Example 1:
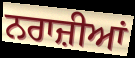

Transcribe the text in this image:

ਨਰਾਜ਼ੀਆਂ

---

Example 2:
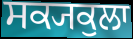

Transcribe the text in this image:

ਸਕ੍ਯਕੁਲਾ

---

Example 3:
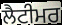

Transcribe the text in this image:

ਲੈਟੀਮਰ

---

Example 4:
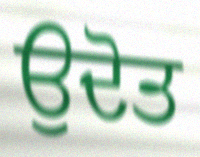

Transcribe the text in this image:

ਉਦੋਤ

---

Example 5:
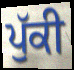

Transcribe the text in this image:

ਪੁੱਕੀ